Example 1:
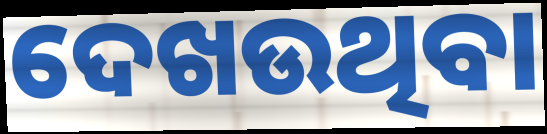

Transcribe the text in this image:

ଦେଖଉଥିବା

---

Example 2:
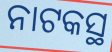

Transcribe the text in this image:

ନାଟକସ୍ଥ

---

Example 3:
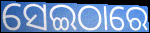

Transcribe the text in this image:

ସେଇଠାରେ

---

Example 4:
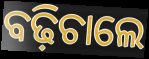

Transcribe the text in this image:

ବଢ଼ିଚାଲେ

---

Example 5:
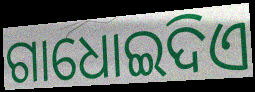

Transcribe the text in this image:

ଗାଧୋଇଦିଏ